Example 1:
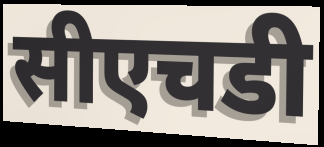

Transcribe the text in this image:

सीएचडी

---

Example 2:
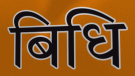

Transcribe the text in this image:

बिधि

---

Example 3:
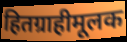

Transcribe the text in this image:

हितग्राहीमूलक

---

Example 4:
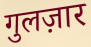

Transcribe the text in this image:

गुलज़ार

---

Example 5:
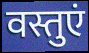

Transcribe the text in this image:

वस्तुएं